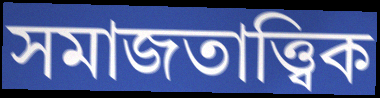
সমাজতাত্ত্বিক